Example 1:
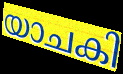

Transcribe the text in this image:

യാചകി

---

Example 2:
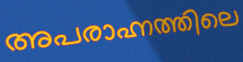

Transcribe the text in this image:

അപരാഹ്നത്തിലെ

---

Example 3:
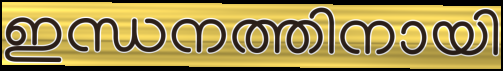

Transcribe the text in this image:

ഇന്ധനത്തിനായി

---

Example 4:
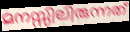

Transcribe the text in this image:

മനസ്സിലിരുന്നത്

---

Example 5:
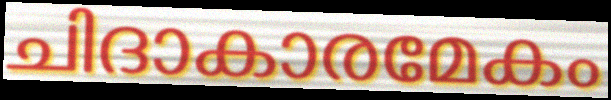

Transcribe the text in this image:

ചിദാകാരമേകം